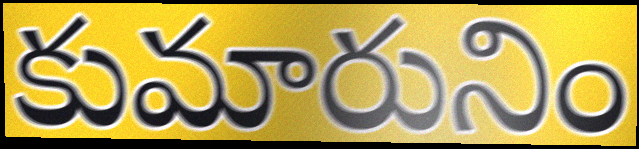
కుమారునిం